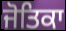
ਜੋਤਿਕਾ